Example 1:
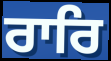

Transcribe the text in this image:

ਰਾਰਿ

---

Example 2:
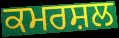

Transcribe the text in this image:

ਕਮਰਸ਼ਲ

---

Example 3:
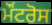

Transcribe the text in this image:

ਮੌਂਟਰੋਸ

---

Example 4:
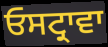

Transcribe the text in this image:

ਓਸਟ੍ਰਾਵਾ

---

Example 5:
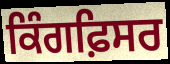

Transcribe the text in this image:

ਕਿੰਗਫ਼ਿਸਰ